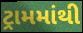
ટ્રામમાંથી